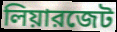
লিয়ারজেট